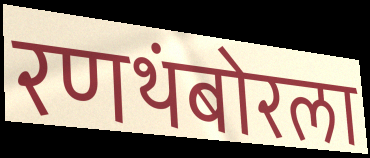
रणथंबोरला